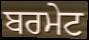
ਬਰਮੇਟ